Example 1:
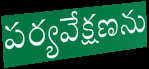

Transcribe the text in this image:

పర్యవేక్షణను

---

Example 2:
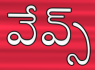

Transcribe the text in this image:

వేవ్స్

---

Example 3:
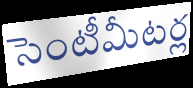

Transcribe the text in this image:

సెంటీమీటర్ల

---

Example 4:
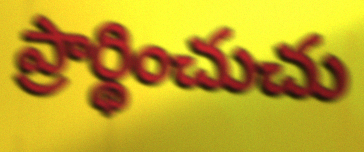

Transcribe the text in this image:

ప్రార్థించుచు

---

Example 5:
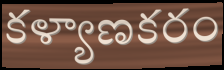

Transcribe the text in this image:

కళ్యాణకరం